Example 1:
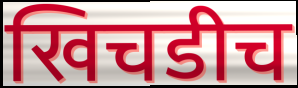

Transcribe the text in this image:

खिचडीच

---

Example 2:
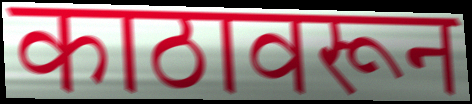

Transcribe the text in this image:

काठावरून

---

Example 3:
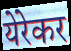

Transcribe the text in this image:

येरेकर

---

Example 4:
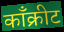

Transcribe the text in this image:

काँक्रीट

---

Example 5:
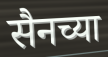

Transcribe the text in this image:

सैनच्या